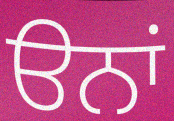
ੳਨਾਂ